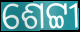
ଶେଟ୍ଟୀ